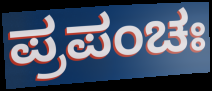
ಪ್ರಪಂಚಃ